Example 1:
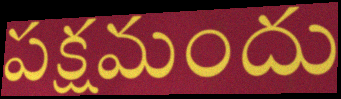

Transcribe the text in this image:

పక్షమందు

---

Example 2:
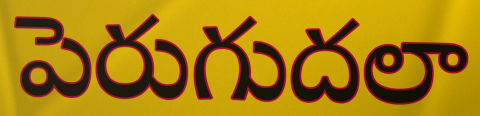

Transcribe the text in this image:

పెరుగుదలా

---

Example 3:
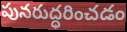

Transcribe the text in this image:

పునరుద్ధరించడం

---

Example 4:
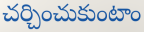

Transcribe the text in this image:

చర్చించుకుంటాం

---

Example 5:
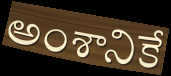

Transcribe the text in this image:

అంశానికే